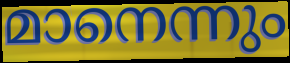
മാനെന്നും